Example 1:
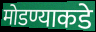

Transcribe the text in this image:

मोडण्याकडे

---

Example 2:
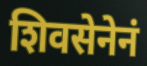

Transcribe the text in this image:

शिवसेनेनं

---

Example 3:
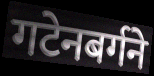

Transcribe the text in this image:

गटेनबर्गने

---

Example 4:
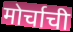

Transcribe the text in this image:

मोर्चाची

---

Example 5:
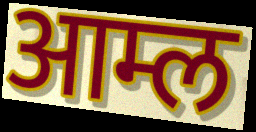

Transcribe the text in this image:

आम्‍ल